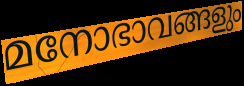
മനോഭാവങ്ങളും